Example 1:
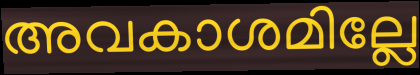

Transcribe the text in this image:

അവകാശമില്ലേ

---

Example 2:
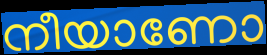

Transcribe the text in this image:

നീയാണോ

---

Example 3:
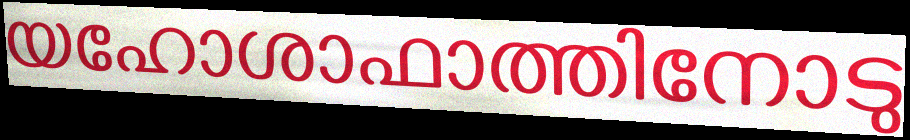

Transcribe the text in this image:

യഹോശാഫാത്തിനോടു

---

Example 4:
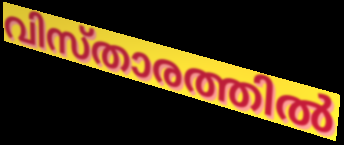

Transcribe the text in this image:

വിസ്താരത്തിൽ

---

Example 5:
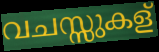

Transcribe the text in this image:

വചസ്സുകള്